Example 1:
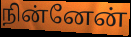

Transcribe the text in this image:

நின்னேன்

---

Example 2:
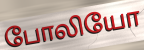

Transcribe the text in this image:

போலியோ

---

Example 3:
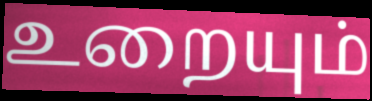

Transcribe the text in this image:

உறையும்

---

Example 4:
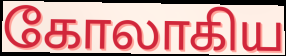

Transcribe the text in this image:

கோலாகிய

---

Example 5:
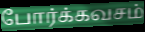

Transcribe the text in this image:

போர்க்கவசம்